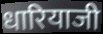
धारियाजी